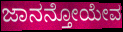
ಜಾನನ್ತೋಯೇವ